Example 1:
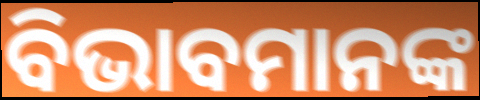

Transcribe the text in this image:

ବିଭାବମାନଙ୍କ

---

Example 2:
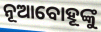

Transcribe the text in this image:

ନୂଆବୋହୂଙ୍କୁ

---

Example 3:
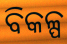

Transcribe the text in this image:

ବିକଳ୍ପ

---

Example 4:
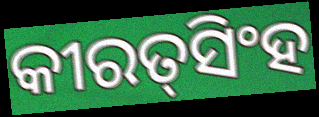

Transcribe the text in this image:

କୀରତ୍‍ସିଂହ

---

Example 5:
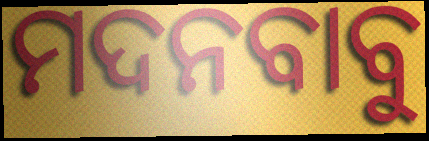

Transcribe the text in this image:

ମଦନବାବୁ